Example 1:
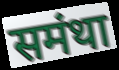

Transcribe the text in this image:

समंथा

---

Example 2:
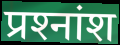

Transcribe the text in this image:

प्रश्‍नांश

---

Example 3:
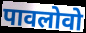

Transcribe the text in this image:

पावलोवो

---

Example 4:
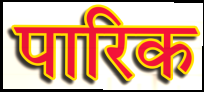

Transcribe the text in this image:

पारिक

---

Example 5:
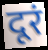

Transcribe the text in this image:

दूरं